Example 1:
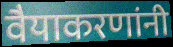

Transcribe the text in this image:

वैयाकरणांनी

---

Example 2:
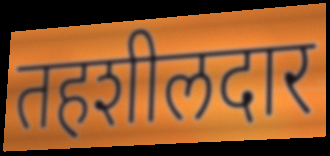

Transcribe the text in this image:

तहशीलदार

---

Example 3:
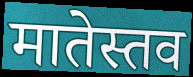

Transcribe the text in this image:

मातेस्तव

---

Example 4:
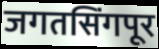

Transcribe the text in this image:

जगतसिंगपूर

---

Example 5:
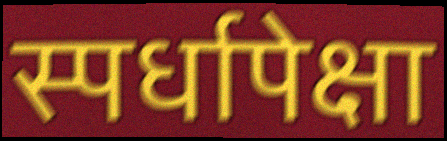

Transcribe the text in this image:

स्पर्धापेक्षा